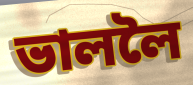
ভাললৈ